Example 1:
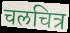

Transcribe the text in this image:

चलचित्र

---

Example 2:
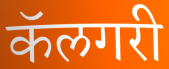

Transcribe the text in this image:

कॅलगरी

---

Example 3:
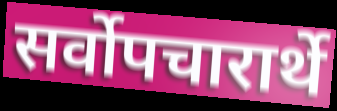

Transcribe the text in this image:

सर्वोपचारार्थे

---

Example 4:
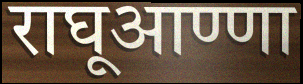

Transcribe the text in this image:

राघूआण्णा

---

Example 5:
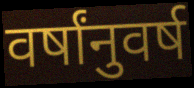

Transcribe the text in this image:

वर्षांनुवर्ष